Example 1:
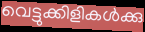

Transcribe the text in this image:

വെട്ടുക്കിളികൾക്കു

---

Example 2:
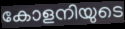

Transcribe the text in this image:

കോളനിയുടെ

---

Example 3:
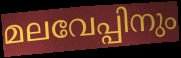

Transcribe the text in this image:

മലവേപ്പിനും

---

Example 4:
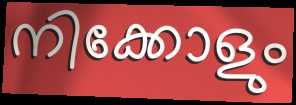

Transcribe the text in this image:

നിക്കോളും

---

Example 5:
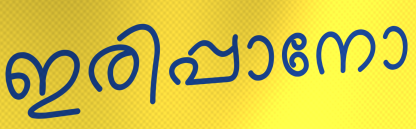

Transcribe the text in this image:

ഇരിപ്പാനോ